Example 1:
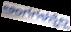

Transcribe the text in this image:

ಅಂಗಗಳನ್ನೆಲ್ಲ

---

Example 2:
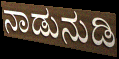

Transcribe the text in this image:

ನಾಡುನುಡಿ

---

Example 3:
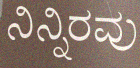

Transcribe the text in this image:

ನಿನ್ನಿರವು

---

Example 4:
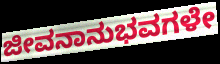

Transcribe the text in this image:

ಜೀವನಾನುಭವಗಳೇ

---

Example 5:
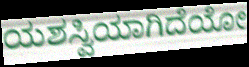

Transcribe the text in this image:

ಯಶಸ್ವಿಯಾಗಿದೆಯೋ